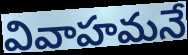
వివాహమనే